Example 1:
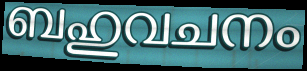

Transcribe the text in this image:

ബഹുവചനം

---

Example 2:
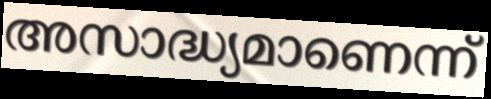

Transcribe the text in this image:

അസാദ്ധ്യമാണെന്ന്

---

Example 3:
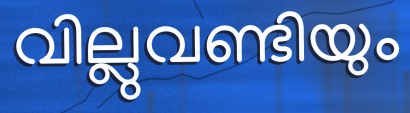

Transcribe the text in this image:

വില്ലുവണ്ടിയും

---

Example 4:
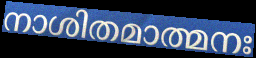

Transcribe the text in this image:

നാശിതമാത്മനഃ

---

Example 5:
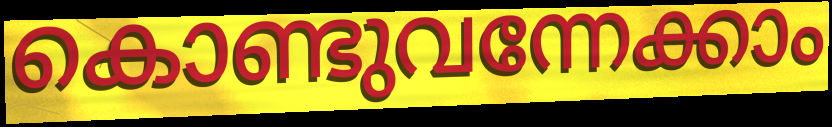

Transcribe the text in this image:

കൊണ്ടുവന്നേക്കാം